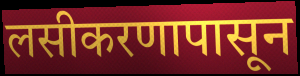
लसीकरणापासून